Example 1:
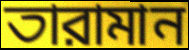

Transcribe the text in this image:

তারামান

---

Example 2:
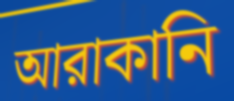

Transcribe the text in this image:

আরাকানি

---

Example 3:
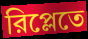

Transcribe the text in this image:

রিপ্লেতে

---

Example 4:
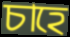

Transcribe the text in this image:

চাহে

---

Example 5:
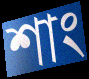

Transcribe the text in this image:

শাং